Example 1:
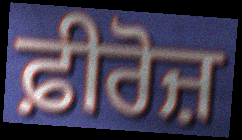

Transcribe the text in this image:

ਫ਼ੀਰੋਜ਼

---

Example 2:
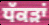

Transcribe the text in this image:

ਧੱਕੜਾਂ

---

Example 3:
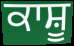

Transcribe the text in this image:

ਕਾਸ਼ੂ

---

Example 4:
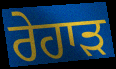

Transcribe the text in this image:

ਰੇਹਾੜ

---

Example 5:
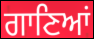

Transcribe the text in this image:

ਗਾਣਿਆਂ